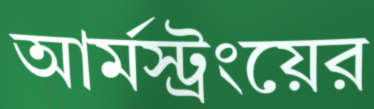
আর্মস্ট্রংয়ের